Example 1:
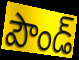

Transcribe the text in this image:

పౌండ్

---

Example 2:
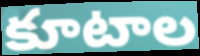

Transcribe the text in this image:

కూటాల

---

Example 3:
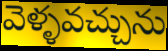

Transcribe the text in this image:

వెళ్ళవచ్చును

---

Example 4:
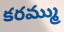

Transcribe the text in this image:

కరమ్ము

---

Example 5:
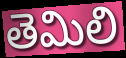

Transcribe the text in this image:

తెమిలి